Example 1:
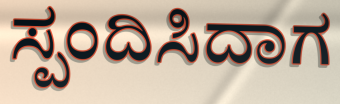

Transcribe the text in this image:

ಸ್ಪಂದಿಸಿದಾಗ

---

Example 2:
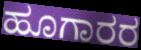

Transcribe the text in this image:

ಹೂಗಾರರ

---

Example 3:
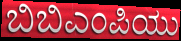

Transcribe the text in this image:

ಬಿಬಿಎಂಪಿಯು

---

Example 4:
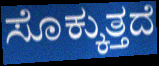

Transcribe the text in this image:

ಸೊಕ್ಕುತ್ತದೆ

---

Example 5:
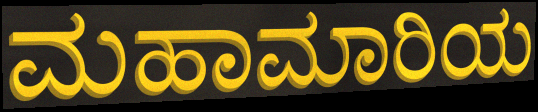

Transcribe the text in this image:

ಮಹಾಮಾರಿಯ